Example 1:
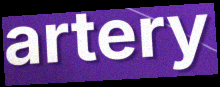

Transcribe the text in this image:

artery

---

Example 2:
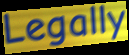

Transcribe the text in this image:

Legally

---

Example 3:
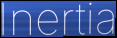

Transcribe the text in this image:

Inertia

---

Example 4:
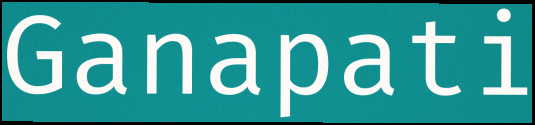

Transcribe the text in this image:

Ganapati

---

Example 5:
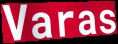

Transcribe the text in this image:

Varas